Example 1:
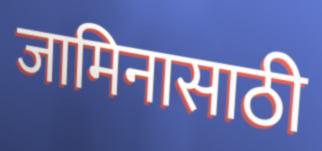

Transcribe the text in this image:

जामिनासाठी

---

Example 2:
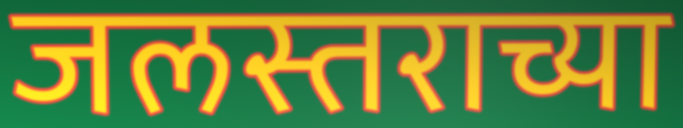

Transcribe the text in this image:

जलस्तराच्या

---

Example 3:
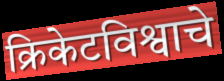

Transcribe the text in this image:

क्रिकेटविश्वाचे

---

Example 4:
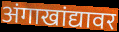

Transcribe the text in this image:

अंगाखांद्यावर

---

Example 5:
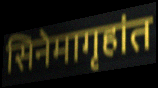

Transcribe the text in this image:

सिनेमागृहांत